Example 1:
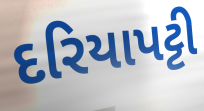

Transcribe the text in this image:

દરિયાપટ્ટી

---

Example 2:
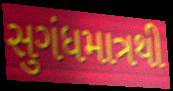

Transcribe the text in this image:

સુગંધમાત્રથી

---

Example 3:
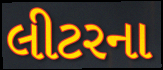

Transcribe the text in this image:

લીટરના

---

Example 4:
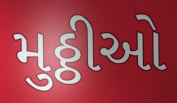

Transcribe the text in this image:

મુઠ્ઠીઓ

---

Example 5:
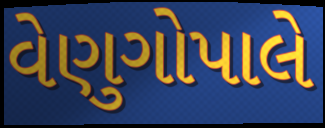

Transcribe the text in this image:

વેણુગોપાલે